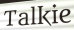
Talkie